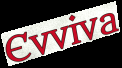
Evviva